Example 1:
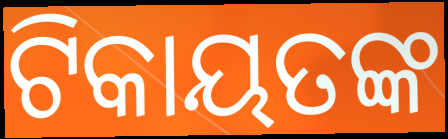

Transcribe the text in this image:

ଟିକାୟତଙ୍କ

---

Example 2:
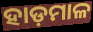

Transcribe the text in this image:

ହାଡ଼ମାଳ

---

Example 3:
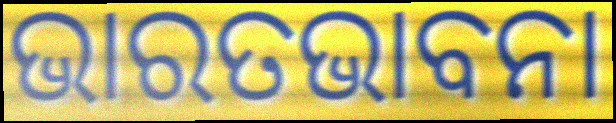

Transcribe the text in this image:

ଭାରତଭାବନା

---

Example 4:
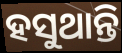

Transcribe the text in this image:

ହସୁଥାନ୍ତି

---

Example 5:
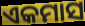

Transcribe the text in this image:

ଏକମାସ